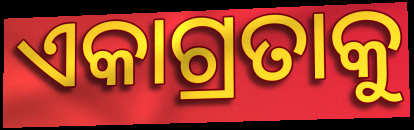
ଏକାଗ୍ରତାକୁ